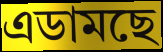
এডামছে